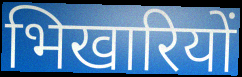
भिखारियों